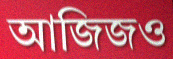
আজিজও